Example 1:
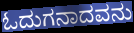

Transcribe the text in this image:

ಓದುಗನಾದವನು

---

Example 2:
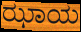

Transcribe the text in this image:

ಝಾಯ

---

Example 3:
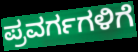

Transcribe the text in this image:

ಪ್ರವರ್ಗಗಳಿಗೆ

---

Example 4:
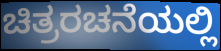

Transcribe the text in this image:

ಚಿತ್ರರಚನೆಯಲ್ಲಿ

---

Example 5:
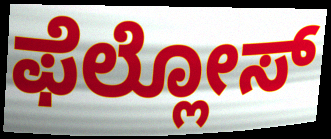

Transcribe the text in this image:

ಫೆಲ್ಲೋಸ್